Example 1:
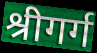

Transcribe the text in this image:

श्रीगर्ग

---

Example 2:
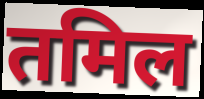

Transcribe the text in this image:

तमिल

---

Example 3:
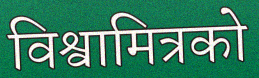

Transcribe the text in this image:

विश्वामित्रको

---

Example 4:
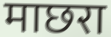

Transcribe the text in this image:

माछरा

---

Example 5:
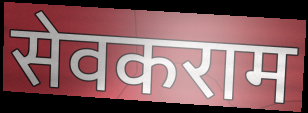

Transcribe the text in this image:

सेवकराम